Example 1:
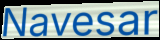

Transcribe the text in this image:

Navesar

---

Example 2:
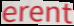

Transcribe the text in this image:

erent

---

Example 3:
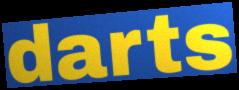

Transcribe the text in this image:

darts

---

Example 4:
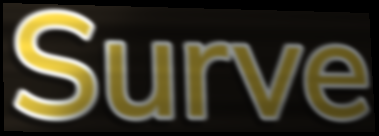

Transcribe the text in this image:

Surve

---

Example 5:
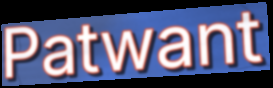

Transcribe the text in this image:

Patwant